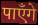
पाऍंगे